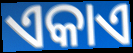
ଏକାଏ